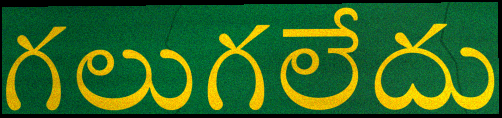
గలుగలేదు